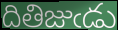
దితిజుఁడు